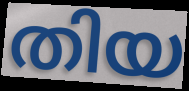
തിയ